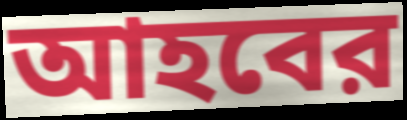
আহবের